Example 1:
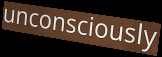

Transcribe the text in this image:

unconsciously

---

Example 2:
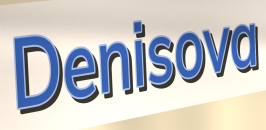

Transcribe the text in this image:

Denisova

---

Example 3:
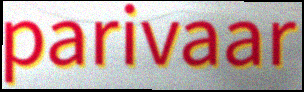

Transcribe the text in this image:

parivaar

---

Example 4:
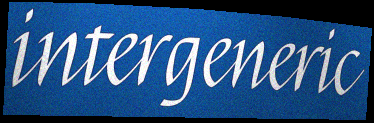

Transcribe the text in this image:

intergeneric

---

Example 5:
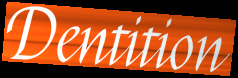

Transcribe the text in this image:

Dentition